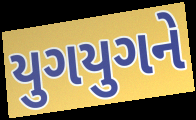
યુગયુગને